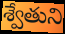
శ్వేతుని